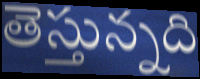
తెస్తున్నది